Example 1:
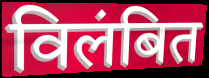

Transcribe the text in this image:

विलंबित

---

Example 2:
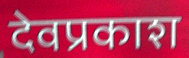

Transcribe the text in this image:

देवप्रकाश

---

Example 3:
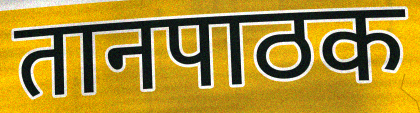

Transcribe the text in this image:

तानपाठक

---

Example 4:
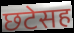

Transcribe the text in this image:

छटेसह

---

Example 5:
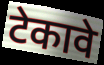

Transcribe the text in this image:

टेकावे